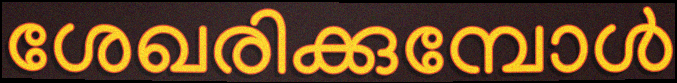
ശേഖരിക്കുമ്പോൾ